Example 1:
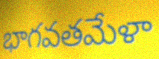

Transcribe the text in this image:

భాగవతమేళా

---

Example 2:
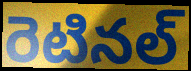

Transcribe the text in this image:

రెటినల్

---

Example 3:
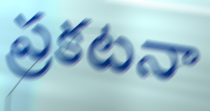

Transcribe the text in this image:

ప్రకటనా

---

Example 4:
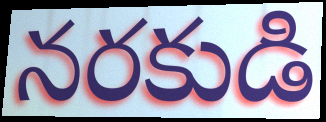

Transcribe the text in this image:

నరకుడి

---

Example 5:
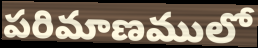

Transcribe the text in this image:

పరిమాణములో